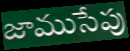
జాముసేపు